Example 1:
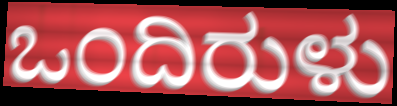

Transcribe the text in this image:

ಒಂದಿರುಳು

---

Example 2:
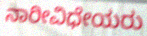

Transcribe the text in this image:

ನಾರೀವಿಧೇಯರು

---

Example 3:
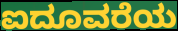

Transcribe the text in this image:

ಐದೂವರೆಯ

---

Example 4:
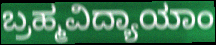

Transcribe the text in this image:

ಬ್ರಹ್ಮವಿದ್ಯಾಯಾಂ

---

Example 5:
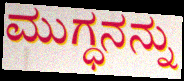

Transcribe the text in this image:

ಮುಗ್ಧನನ್ನು